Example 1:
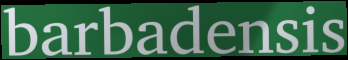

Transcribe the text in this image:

barbadensis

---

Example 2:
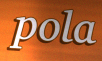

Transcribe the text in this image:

pola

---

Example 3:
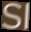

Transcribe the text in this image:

Sl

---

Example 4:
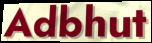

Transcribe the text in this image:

Adbhut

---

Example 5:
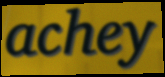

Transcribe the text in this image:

achey